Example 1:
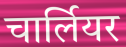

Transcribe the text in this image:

चार्लियर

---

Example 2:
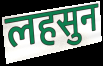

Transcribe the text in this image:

लहसुन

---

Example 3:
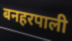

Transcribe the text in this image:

बनहरपाली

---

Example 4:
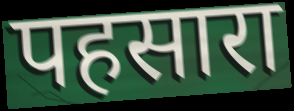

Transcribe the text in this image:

पहसारा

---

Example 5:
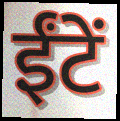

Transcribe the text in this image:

ईंटें